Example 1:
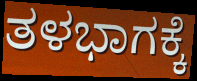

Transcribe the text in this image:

ತಳಭಾಗಕ್ಕೆ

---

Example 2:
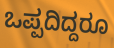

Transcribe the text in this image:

ಒಪ್ಪದಿದ್ದರೂ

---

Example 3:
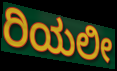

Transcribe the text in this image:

ರಿಯಲೀ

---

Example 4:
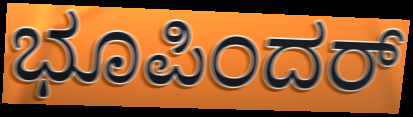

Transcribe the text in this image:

ಭೂಪಿಂದರ್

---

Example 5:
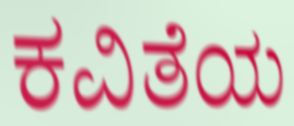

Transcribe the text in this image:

ಕವಿತೆಯ